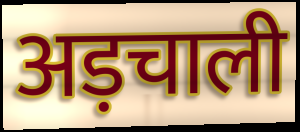
अड़चाली